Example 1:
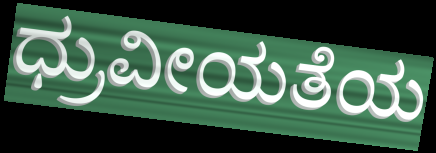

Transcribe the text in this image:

ಧ್ರುವೀಯತೆಯ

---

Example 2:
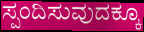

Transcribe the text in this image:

ಸ್ಪಂದಿಸುವುದಕ್ಕೂ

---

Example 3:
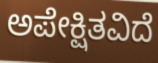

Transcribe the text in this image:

ಅಪೇಕ್ಷಿತವಿದೆ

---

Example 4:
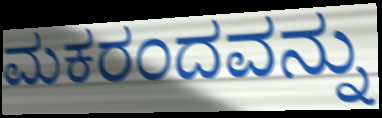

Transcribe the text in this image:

ಮಕರಂದವನ್ನು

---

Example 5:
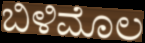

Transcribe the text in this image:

ಬಿಳಿಮೊಲ